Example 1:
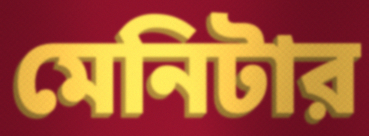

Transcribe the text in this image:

মেনিটার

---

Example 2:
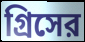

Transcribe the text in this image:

গ্রিসের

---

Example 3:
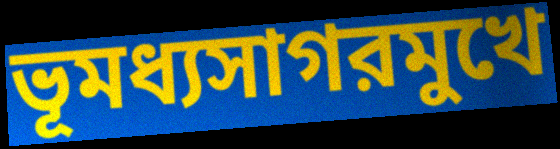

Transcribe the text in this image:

ভূমধ্যসাগরমুখে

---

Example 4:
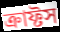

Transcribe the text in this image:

ক্রাফ্টস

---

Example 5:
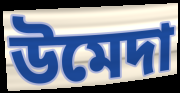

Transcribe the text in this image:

উমেদা